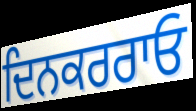
ਦਿਨਕਰਰਾਓ